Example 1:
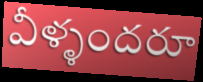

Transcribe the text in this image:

వీళ్ళందరూ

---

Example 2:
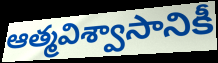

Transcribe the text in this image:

ఆత్మవిశ్వాసానికీ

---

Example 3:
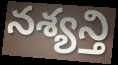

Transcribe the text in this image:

నశ్యన్తి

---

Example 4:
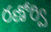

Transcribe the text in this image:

రణోర్వి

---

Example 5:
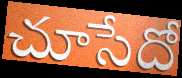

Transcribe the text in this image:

చూసేదో